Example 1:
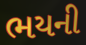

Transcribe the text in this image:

ભયની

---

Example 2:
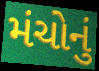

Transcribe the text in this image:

મંચોનું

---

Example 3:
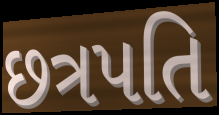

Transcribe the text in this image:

છત્રપતિ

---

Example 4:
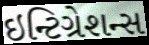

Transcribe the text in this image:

ઇન્ટિગ્રેશન્સ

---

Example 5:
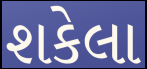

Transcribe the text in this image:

શકેલા